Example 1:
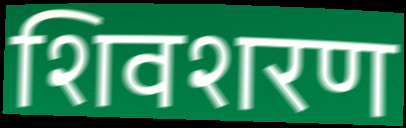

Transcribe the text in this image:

शिवशरण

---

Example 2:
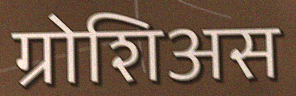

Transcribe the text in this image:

ग्रोशिअस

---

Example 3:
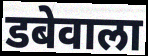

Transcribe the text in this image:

डबेवाला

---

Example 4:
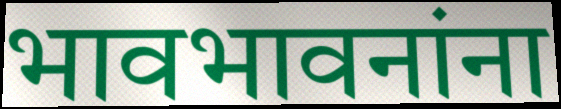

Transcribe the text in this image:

भावभावनांना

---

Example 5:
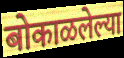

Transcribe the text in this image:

बोकाळलेल्या